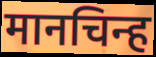
मानचिन्ह